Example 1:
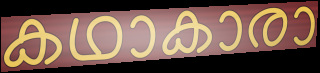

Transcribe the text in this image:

കഥാകാരാ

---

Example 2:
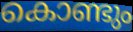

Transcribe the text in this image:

കൊണ്ടും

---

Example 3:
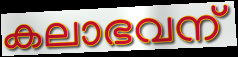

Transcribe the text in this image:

കലാഭവന്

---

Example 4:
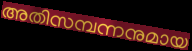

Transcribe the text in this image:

അതിസമ്പന്നനുമായ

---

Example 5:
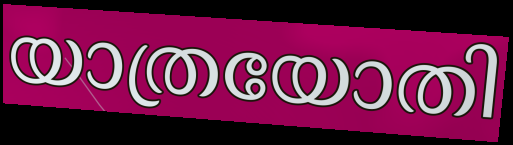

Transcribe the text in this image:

യാത്രയോതി